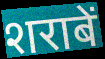
शराबें